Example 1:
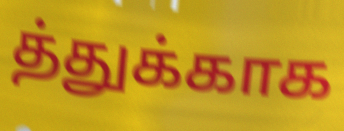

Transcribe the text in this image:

த்துக்காக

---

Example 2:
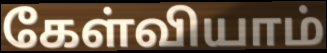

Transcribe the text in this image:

கேள்வியாம்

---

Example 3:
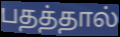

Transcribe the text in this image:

பதத்தால்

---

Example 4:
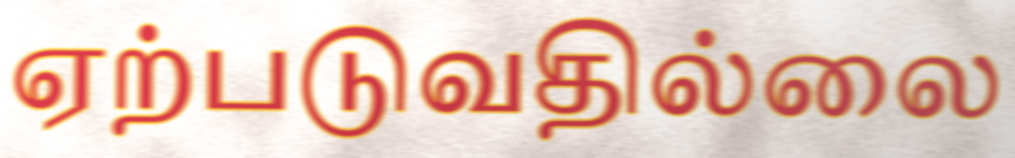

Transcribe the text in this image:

ஏற்படுவதில்லை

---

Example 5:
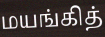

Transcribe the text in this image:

மயங்கித்